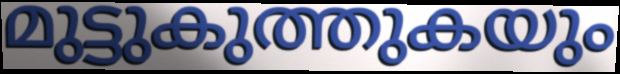
മുട്ടുകുത്തുകയും